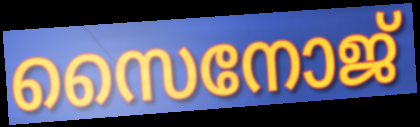
സൈനോജ്